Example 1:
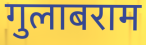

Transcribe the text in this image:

गुलाबराम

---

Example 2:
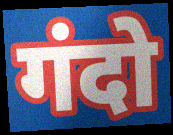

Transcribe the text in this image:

गंदो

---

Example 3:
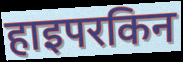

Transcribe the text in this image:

हाइपरकिन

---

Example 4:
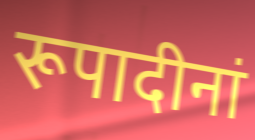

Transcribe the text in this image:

रूपादीनां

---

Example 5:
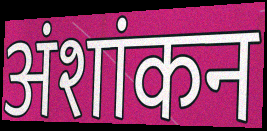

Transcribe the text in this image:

अंशांकन